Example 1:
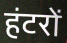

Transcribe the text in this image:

हंटरों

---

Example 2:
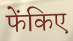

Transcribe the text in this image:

फेंकिए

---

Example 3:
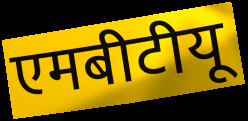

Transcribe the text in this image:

एमबीटीयू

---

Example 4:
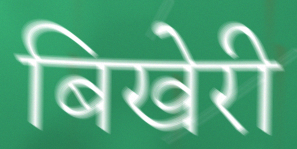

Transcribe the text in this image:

बिखेरी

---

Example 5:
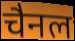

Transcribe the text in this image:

चैनल